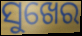
ସୁଖେର